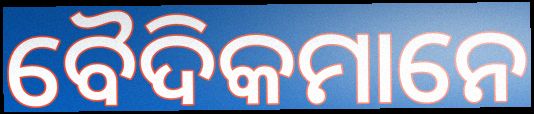
ବୈଦିକମାନେ